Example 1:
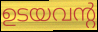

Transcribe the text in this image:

ഉടയവന്റ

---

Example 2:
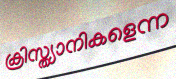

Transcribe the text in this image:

ക്രിസ്ത്യാനികളെന്ന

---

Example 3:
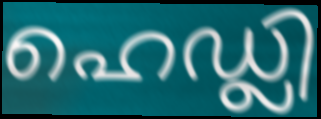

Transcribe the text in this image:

ഹെഡ്ലി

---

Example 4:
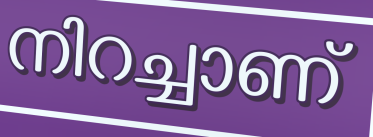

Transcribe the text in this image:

നിറച്ചാണ്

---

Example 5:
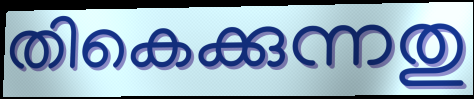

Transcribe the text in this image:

തികെക്കുന്നതു